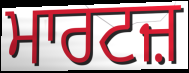
ਮਾਰਟਜ਼